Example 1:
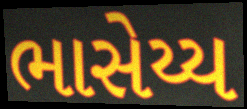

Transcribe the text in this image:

ભાસેય્ય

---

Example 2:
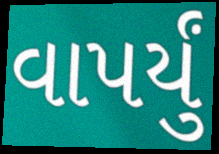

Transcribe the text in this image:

વાપર્યું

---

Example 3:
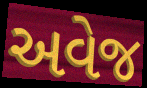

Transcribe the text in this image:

અવેજ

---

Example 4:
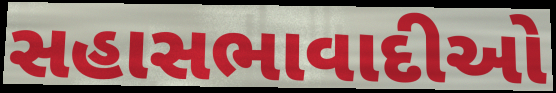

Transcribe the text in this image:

સહાસભાવાદીઓ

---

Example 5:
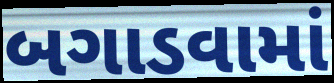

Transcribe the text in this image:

બગાડવામાં